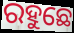
ରହୁଛେ